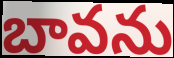
బావను